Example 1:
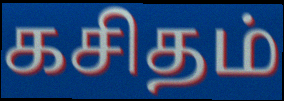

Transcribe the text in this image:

கசிதம்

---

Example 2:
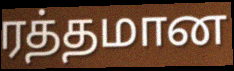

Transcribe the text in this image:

ரத்தமான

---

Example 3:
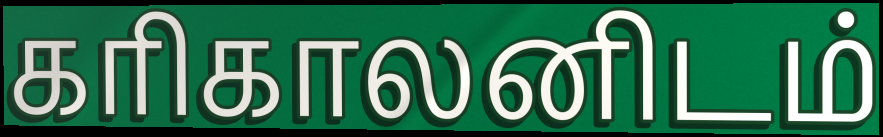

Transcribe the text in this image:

கரிகாலனிடம்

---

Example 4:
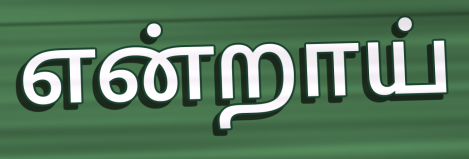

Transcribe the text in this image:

என்றாய்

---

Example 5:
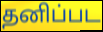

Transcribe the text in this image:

தனிப்பட